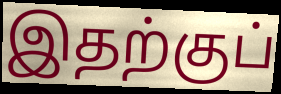
இதற்குப்